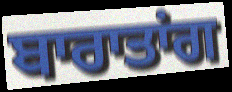
ਬਾਰਾਤਾਂਗ